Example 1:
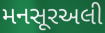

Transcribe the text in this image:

મનસૂરઅલી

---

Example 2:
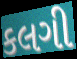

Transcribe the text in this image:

કલગી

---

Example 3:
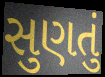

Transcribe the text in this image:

સુણતું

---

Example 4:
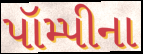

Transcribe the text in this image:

પૉમ્પીના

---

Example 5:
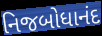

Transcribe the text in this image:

નિજબોધાનંદ